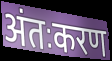
अंतःकरण